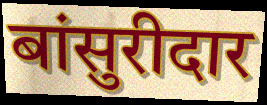
बांसुरीदार